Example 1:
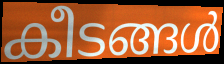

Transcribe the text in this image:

കീടങ്ങൾ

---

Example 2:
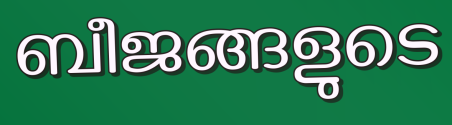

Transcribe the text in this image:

ബീജങ്ങളുടെ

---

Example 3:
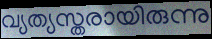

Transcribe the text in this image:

വ്യത്യസ്തരായിരുന്നു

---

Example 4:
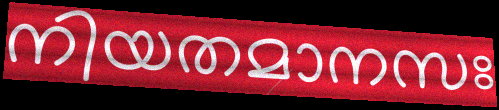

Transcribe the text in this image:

നിയതമാനസഃ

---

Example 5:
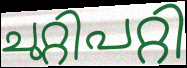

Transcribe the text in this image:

ചുറ്റിപറ്റി